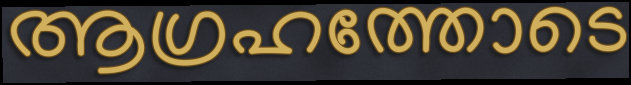
ആഗ്രഹത്തോടെ